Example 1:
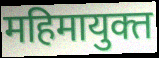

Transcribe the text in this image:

महिमायुक्‍त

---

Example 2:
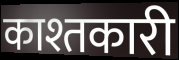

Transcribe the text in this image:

काश्तकारी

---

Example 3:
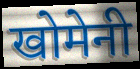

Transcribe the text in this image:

खोमेनी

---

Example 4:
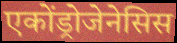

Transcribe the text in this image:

एकोंड्रोजेनेसिस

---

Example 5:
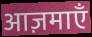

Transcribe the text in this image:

आज़माएँ